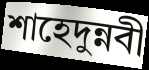
শাহেদুন্নবী